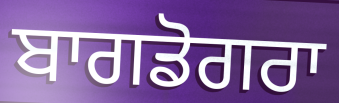
ਬਾਗਡੋਗਰਾ